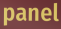
panel